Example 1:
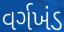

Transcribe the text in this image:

વર્ગખંડ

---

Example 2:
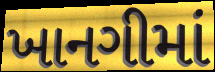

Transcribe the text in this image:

ખાનગીમાં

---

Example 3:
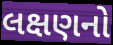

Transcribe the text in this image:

લક્ષણનો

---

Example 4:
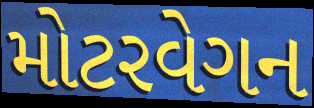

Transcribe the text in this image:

મોટરવેગન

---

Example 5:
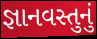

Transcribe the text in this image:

જ્ઞાનવસ્તુનું